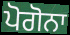
ਪੋਗੋਨਾ